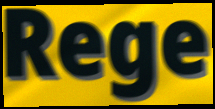
Rege